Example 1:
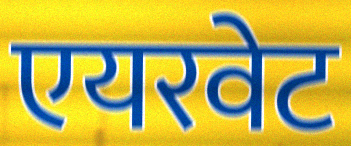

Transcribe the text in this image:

एयरवेट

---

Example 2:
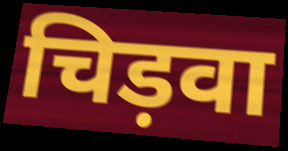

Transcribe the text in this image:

चिड़वा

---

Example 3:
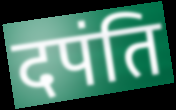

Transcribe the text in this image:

दपंति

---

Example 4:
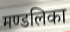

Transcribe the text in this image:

मण्डलिका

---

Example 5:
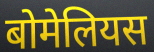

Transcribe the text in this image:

बोमेलियस